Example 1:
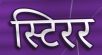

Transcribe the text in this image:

स्टिरर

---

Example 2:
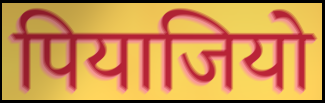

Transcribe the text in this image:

पियाजियो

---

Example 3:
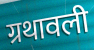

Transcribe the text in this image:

ग्रथावली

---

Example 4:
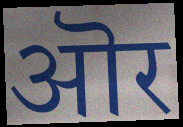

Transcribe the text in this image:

ऒर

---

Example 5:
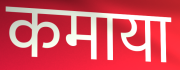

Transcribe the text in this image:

कमाया